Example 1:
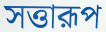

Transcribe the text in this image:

সত্তারূপ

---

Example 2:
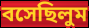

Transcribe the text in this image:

বসেছিলুম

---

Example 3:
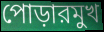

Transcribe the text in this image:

পোড়ারমুখ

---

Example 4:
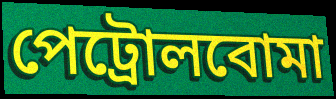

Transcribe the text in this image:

পেট্রোলবোমা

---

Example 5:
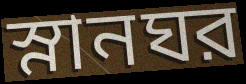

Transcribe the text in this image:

স্নানঘর